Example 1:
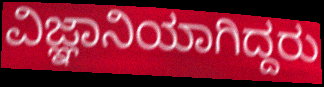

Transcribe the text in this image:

ವಿಜ್ಞಾನಿಯಾಗಿದ್ದರು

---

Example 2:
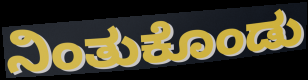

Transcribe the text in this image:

ನಿಂತುಕೊಂಡು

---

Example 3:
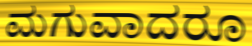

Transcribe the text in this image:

ಮಗುವಾದರೂ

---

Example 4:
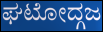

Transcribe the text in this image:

ಘಟೋದ್ಗಜ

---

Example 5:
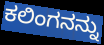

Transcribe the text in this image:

ಕಲಿಂಗನನ್ನು